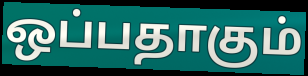
ஒப்பதாகும்